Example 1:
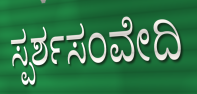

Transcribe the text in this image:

ಸ್ಪರ್ಶಸಂವೇದಿ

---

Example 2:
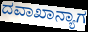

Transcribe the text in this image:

ದವಾಖಾನ್ಯಾಗ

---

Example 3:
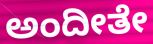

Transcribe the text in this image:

ಅಂದೀತೇ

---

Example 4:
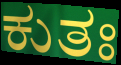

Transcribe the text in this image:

ಕುತಃ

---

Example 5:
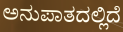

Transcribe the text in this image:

ಅನುಪಾತದಲ್ಲಿದೆ